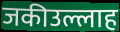
जकीउल्लाह